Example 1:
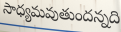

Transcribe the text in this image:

సాధ్యమవుతుందన్నది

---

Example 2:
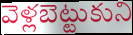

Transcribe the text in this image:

వెళ్లబెట్టుకుని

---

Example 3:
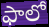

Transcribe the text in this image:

ఫాలో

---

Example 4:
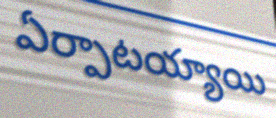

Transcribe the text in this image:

ఏర్పాటయ్యాయి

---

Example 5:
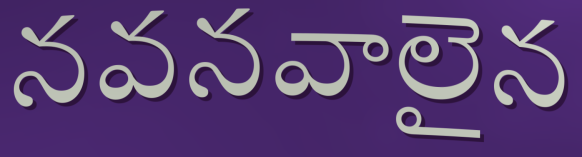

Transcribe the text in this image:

నవనవాలైన